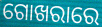
ଗୋଖରାରେ